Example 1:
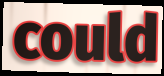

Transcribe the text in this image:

could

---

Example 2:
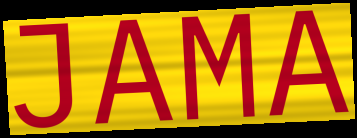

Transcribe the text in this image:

JAMA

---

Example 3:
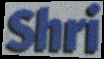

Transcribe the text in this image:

Shri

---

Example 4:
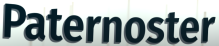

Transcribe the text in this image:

Paternoster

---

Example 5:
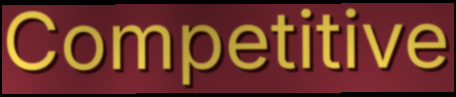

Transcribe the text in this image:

Competitive